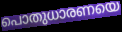
പൊതുധാരണയെ